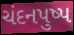
ચંદનપુષ્પ